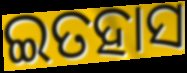
ଇତହାସ